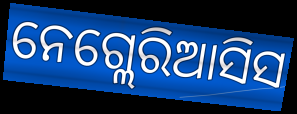
ନେଗ୍ଲେରିଆସିସ